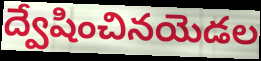
ద్వేషించినయెడల